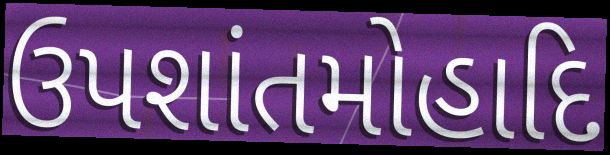
ઉપશાંતમોહાદિ